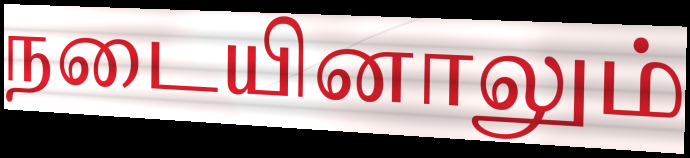
நடையினாலும்